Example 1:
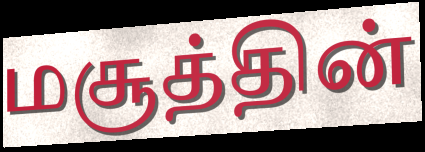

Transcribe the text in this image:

மசூத்தின்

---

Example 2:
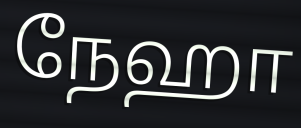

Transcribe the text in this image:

நேஹா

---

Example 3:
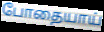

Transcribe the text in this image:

போதையாய்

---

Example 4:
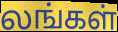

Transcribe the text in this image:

லங்கள்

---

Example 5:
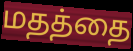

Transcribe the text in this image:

மதத்தை